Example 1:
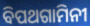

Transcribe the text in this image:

ବିପଥଗାମିନୀ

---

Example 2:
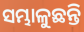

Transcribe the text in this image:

ସମ୍ଭାଳୁଛନ୍ତି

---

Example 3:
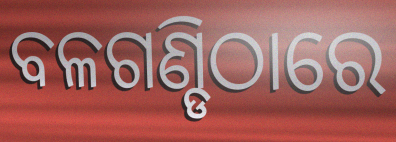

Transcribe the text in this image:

ବଳଗଣ୍ଡିଠାରେ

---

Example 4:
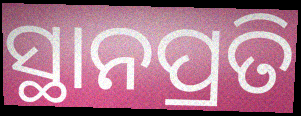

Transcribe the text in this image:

ସ୍ଥାନପ୍ରତି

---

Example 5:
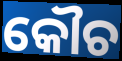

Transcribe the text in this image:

କୌଚ